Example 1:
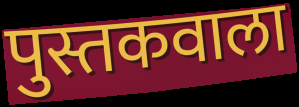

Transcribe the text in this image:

पुस्तकवाला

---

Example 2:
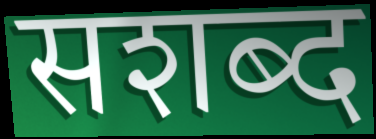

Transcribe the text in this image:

सशब्द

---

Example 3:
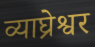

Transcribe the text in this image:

व्याघ्रेश्वर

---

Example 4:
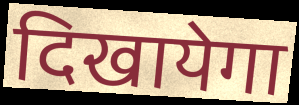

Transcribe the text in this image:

दिखायेगा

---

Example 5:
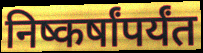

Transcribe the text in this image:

निष्कर्षांपर्यंत